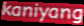
kaniyang